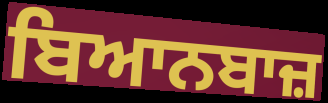
ਬਿਆਨਬਾਜ਼